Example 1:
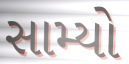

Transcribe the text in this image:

સામ્યો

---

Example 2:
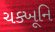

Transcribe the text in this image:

ચક્ખૂનિ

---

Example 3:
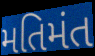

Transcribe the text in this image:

મતિમંત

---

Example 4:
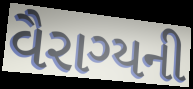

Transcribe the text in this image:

વૈરાગ્યની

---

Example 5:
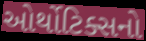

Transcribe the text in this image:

ઓર્થોટિક્સનો